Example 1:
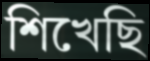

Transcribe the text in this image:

শিখেছি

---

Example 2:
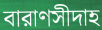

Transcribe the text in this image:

বারাণসীদাহ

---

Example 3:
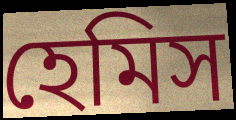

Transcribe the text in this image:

হেমিস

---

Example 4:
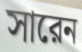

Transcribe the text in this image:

সারেন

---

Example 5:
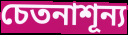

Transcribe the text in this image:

চেতনাশূন্য